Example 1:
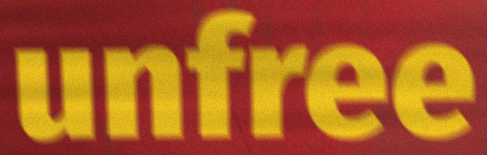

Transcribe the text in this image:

unfree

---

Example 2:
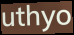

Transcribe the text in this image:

uthyo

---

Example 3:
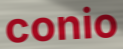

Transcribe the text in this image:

conio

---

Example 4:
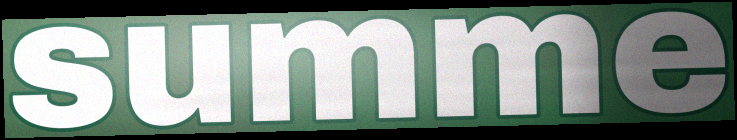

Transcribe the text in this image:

summe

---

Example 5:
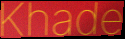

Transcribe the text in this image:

Khade